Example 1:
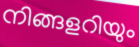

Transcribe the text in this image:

നിങ്ങളറിയും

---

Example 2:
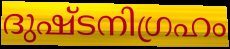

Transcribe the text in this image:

ദുഷ്ടനിഗ്രഹം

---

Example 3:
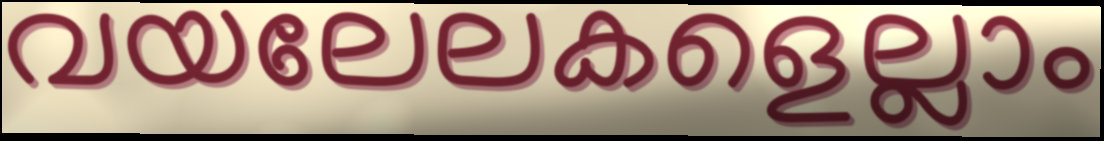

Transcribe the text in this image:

വയലേലകളെല്ലാം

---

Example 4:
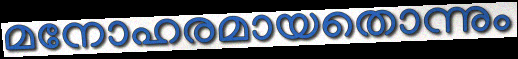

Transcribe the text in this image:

മനോഹരമായതൊന്നും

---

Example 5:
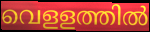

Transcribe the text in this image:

വെളളത്തിൽ